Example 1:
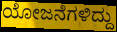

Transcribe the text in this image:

ಯೋಜನೆಗಳಿದ್ದು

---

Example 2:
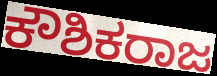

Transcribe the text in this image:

ಕೌಶಿಕರಾಜ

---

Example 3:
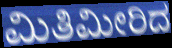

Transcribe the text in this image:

ಮಿತಿಮೀರಿದ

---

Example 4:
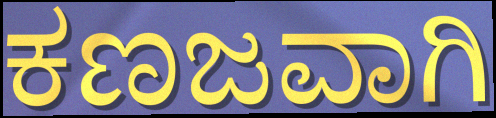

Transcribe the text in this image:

ಕಣಜವಾಗಿ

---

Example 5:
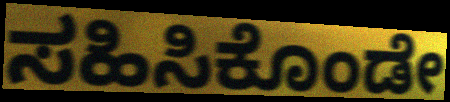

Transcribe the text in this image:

ಸಹಿಸಿಕೊಂಡೇ